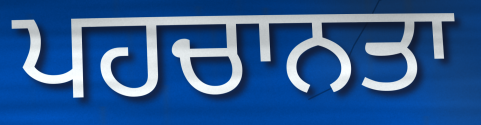
ਪਹਚਾਨਤਾ